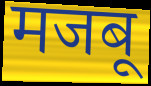
मजबू